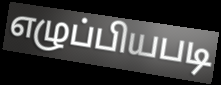
எழுப்பியபடி